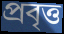
প্ৰবৃত্ত